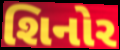
શિનોર